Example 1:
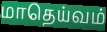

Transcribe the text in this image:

மாதெய்வம்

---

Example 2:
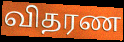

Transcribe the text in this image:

விதரண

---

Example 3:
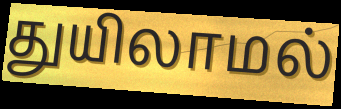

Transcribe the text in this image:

துயிலாமல்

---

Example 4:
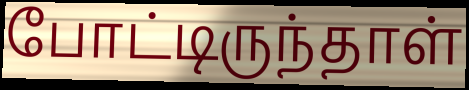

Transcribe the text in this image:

போட்டிருந்தாள்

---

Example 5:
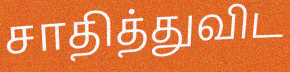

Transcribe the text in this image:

சாதித்துவிட